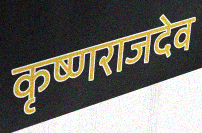
कृष्णराजदेव